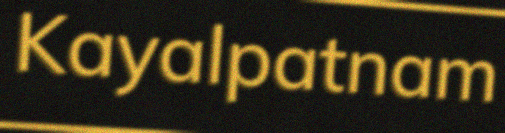
Kayalpatnam